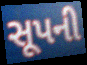
સૂપની